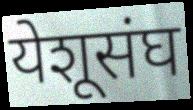
येशूसंघ